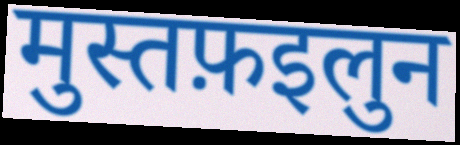
मुस्तफ़इलुन